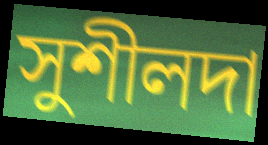
সুশীলদা